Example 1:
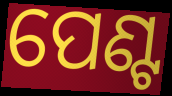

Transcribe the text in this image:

ପେଣ୍ଟ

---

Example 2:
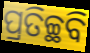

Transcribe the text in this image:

ପ୍ରତିଚ୍ଛବି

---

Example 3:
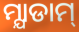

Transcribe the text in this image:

ମ୍ଯାଡାମ୍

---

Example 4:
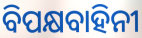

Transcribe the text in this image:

ବିପକ୍ଷବାହିନୀ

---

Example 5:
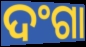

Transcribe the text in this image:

ଦଂଗା